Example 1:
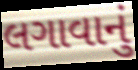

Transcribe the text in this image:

લગાવાનું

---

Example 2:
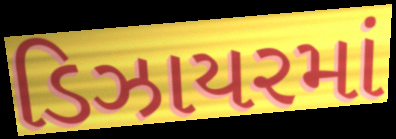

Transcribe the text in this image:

ડિઝાયરમાં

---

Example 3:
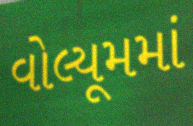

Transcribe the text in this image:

વોલ્યૂમમાં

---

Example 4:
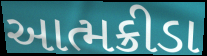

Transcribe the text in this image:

આત્મક્રીડા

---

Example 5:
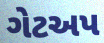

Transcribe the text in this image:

ગેટઅપ